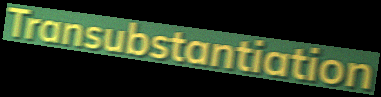
Transubstantiation